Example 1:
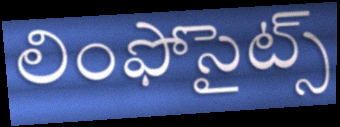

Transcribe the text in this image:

లింఫోసైట్స్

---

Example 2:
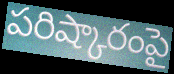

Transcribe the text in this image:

పరిష్కారంపై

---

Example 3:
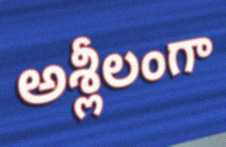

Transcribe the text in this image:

అశ్లీలంగా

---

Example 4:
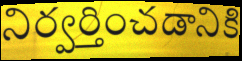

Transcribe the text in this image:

నిర్వర్తించడానికి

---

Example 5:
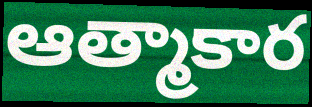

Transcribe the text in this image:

ఆత్మాకార